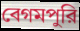
বেগমপুরি